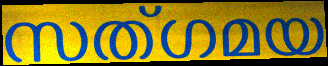
സത്ഗമയ